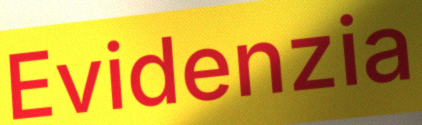
Evidenzia